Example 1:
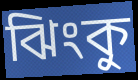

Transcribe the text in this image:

ঝিংকু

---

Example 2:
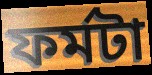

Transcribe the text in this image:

ফর্মটা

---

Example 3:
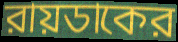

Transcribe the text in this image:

রায়ডাকের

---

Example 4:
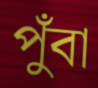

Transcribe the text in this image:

পুঁবা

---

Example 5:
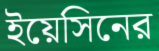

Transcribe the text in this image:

ইয়েসিনের